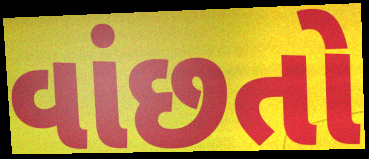
વાંછતો